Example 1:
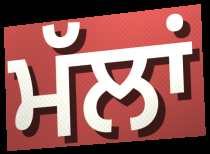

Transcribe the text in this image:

ਮੱਲਾਂ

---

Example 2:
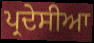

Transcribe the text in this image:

ਪ੍ਰਦੇਸੀਆ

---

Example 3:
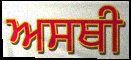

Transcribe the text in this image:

ਅਸਥੀ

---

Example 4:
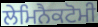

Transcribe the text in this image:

ਲੇਮਿਨੈਕਟੋਮੀ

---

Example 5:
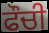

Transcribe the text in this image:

ਫੌਚੀ